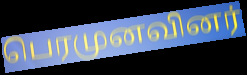
பெரமுனவினர்